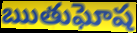
ఋతుఘోష